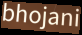
bhojani